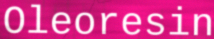
Oleoresin